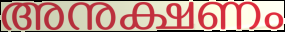
അനുക്ഷണം